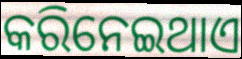
କରିନେଇଥାଏ